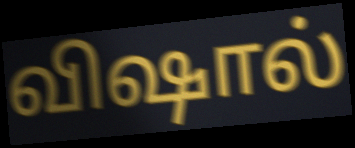
விஷால்